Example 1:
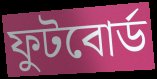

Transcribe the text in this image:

ফুটবোর্ড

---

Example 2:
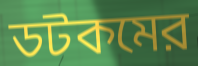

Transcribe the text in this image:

ডটকমের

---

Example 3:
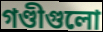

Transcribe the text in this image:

গণ্ডীগুলো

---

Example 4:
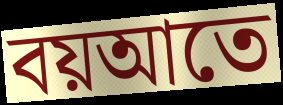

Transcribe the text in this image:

বয়আতে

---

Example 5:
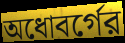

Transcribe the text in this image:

অধোবর্গের